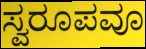
ಸ್ವರೂಪವೂ